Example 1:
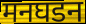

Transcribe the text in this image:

मनघडन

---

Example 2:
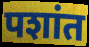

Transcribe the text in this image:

पशांत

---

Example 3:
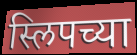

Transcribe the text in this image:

स्लिपच्या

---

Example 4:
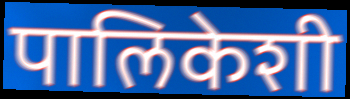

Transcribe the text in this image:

पालिकेशी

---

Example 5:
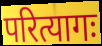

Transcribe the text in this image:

परित्यागः